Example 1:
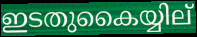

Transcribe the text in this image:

ഇടതുകൈയ്യില്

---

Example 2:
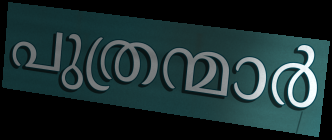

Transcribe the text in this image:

പുത്രന്മാർ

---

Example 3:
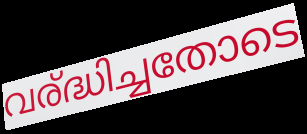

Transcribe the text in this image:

വര്ദ്ധിച്ചതോടെ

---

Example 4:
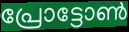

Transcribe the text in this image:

പ്രോട്ടോൺ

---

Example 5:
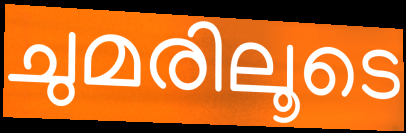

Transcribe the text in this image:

ചുമരിലൂടെ